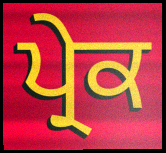
ਪ੍ਰੇਕ